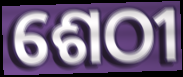
ଶେଠୀ